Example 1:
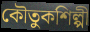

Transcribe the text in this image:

কৌতুকশিল্পী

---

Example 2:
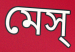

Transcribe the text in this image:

মেস্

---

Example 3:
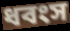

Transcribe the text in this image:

ধবংস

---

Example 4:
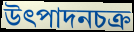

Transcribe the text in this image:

উৎপাদনচক্র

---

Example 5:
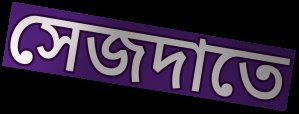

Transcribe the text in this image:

সেজদাতে